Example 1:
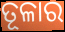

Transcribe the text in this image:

ତୂଳାର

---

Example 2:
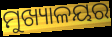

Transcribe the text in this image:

ମୁଖ୍ୟାଳୟର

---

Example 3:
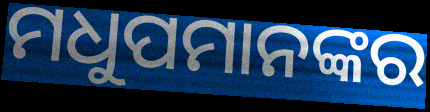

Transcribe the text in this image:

ମଧୁପମାନଙ୍କର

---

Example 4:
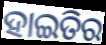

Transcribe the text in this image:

ହାଇତିର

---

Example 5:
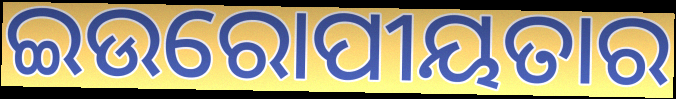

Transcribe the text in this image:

ଇଉରୋପୀୟତାର